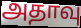
அதாவு